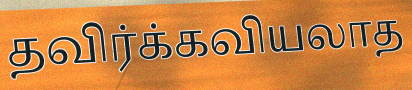
தவிர்க்கவியலாத